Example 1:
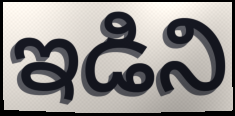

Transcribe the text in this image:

ఇడిని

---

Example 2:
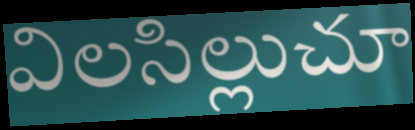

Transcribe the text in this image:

విలసిల్లుచూ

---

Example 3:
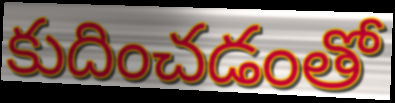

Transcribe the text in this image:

కుదించడంతో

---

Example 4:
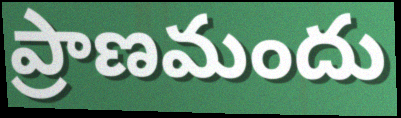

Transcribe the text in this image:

ప్రాణమందు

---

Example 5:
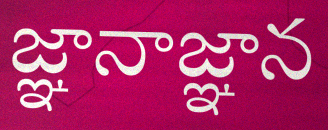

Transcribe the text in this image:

జ్ఞానాజ్ఞాన